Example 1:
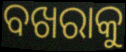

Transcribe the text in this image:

ବଖରାକୁ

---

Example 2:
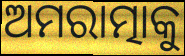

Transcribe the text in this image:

ଅମରାତ୍ମାକୁ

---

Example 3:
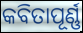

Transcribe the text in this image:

କବିତାପୂର୍ଣ୍ଣ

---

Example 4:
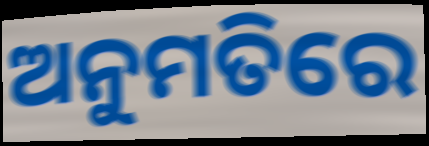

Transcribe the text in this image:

ଅନୁମତିରେ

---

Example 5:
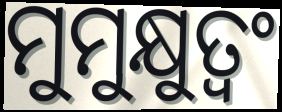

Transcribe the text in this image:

ମୁମୁକ୍ଷୁତ୍ୱଂ